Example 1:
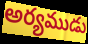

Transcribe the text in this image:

అర్యముడు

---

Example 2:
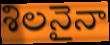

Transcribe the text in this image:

శిలనైనా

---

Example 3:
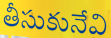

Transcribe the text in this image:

తీసుకునేవి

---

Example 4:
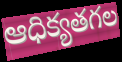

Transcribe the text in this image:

ఆధిక్యతగల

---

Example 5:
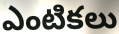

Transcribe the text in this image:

ఎంటికలు